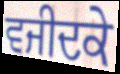
ਵਜੀਦਕੇ